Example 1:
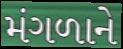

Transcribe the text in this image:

મંગળાને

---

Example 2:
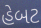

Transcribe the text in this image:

હેબટ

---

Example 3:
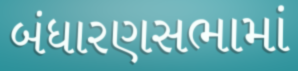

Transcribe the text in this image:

બંધારણસભામાં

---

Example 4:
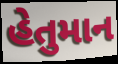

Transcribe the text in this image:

હેતુમાન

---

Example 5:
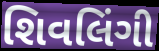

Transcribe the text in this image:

શિવલિંગી